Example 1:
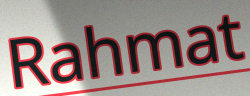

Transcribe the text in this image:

Rahmat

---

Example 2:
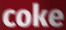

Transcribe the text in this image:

coke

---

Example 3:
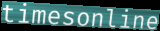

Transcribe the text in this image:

timesonline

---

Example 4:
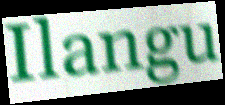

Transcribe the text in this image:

Ilangu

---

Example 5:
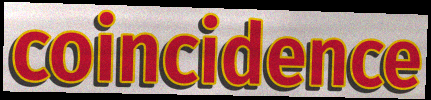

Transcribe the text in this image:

coincidence